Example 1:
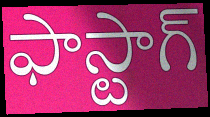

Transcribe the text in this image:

ఫాస్టాగ్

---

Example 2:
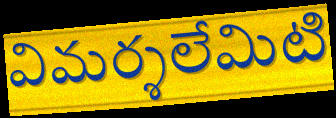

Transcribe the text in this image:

విమర్శలేమిటి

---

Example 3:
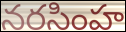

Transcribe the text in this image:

నరసింహ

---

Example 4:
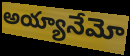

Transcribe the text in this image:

అయ్యానేమో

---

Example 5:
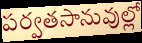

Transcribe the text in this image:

పర్వతసానువుల్లో